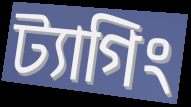
ট্যাগিং